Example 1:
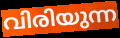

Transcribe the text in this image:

വിരിയുന്ന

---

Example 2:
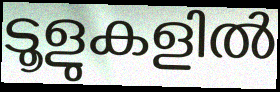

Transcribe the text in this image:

ടൂളുകളിൽ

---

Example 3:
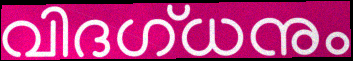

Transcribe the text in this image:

വിദഗ്ധനും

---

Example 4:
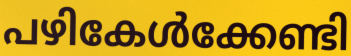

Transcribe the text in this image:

പഴികേൾക്കേണ്ടി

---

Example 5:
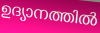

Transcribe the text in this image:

ഉദ്യാനത്തിൽ